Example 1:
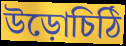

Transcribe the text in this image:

উড়োচিঠি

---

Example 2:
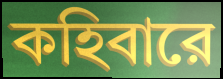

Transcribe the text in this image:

কহিবারে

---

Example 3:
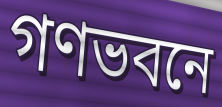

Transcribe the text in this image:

গণভবনে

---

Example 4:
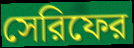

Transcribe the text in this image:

সেরিফের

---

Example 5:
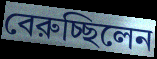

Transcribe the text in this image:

বেরুচ্ছিলেন